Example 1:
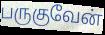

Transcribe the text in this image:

பருகுவேன்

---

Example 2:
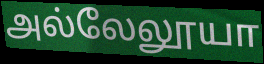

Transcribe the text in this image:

அல்லேலூயா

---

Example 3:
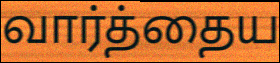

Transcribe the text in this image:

வார்த்தைய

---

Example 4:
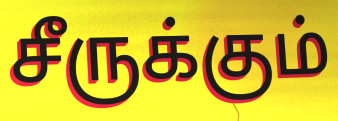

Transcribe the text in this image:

சீருக்கும்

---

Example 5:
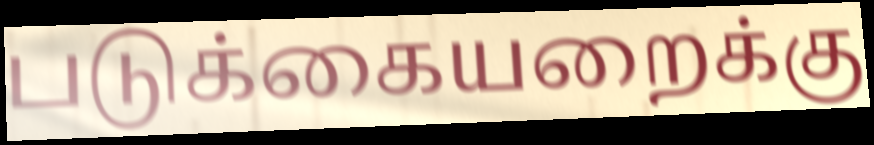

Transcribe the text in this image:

படுக்கையறைக்கு